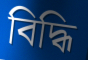
বিদ্ধি